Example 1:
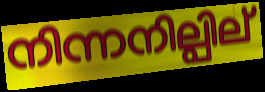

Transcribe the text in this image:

നിന്നനില്പില്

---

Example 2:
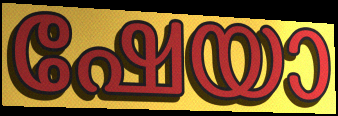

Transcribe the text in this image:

ഷേയാ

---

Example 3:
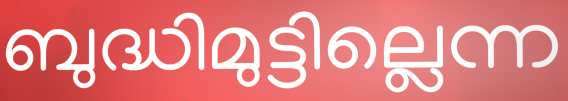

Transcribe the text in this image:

ബുദ്ധിമുട്ടില്ലെന്ന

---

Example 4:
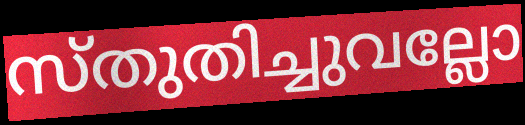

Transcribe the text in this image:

സ്തുതിച്ചുവല്ലോ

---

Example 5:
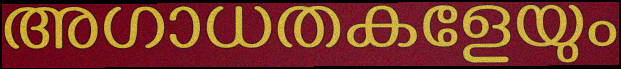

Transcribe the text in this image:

അഗാധതകളേയും